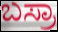
ಬಸ್ರಾ